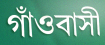
গাঁওবাসী